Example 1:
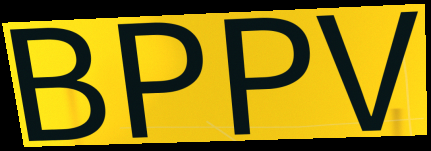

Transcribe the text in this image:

BPPV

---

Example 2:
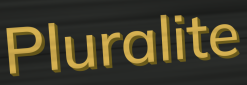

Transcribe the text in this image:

Pluralite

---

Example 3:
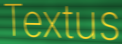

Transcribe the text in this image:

Textus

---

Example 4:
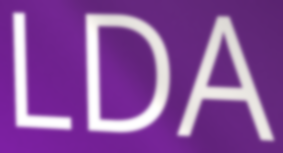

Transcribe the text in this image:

LDA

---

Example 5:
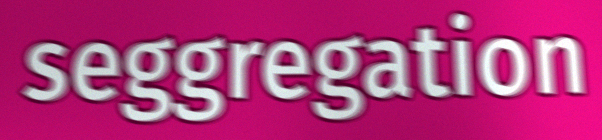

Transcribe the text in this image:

seggregation